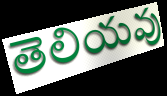
తెలియవు